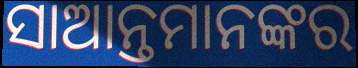
ସାଆନ୍ତମାନଙ୍କର